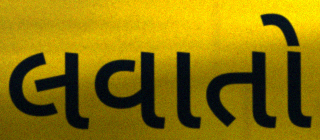
લવાતો